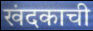
खंदकाची